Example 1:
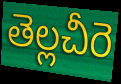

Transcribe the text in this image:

తెల్లచీరె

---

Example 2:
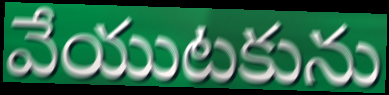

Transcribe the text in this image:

వేయుటకును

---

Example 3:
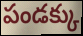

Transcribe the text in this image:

పండక్కు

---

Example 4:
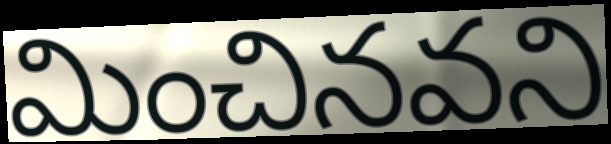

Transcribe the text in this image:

మించినవని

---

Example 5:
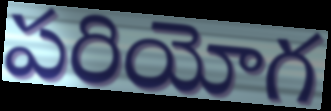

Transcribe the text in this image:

పరియోగ